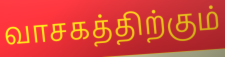
வாசகத்திற்கும்